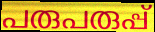
പരുപരുപ്പ്